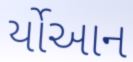
ર્યોઆન